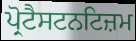
ਪ੍ਰੋਟੈਸਟਨਟਿਜ਼ਮ